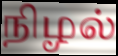
நிழல்